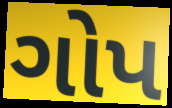
ગોપ